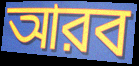
আরব